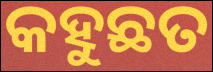
କହୁଛତ